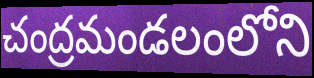
చంద్రమండలంలోని